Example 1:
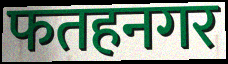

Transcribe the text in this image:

फतहनगर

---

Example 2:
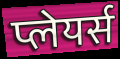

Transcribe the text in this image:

प्लेयर्स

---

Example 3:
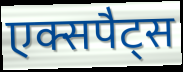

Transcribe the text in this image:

एक्सपैट्स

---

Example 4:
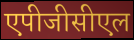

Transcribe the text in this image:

एपीजीसीएल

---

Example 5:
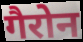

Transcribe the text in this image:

गैरोन